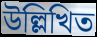
উল্লিখিত